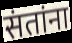
संतांना